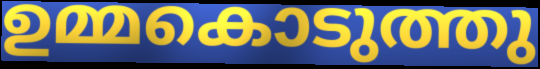
ഉമ്മകൊടുത്തു